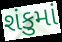
શંકુમાં